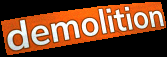
demolition